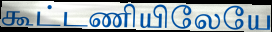
கூட்டணியிலேயே